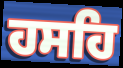
ਹਸਹਿ